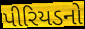
પીરિયડનો